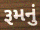
રૂમનું